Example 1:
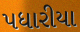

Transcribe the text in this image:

પધારીયા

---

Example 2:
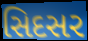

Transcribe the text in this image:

સિદસર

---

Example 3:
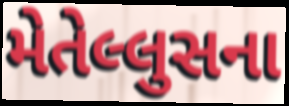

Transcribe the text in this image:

મેતેલ્લુસના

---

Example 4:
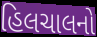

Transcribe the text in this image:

હિલચાલનો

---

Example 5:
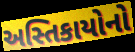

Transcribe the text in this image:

અસ્તિકાયોનો